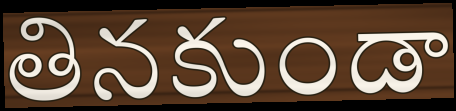
తినకుండా